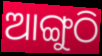
ଆଙ୍ଗୁଠି